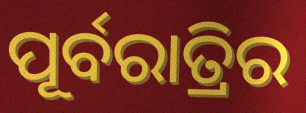
ପୂର୍ବରାତ୍ରିର